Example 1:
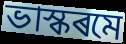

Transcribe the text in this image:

ভাস্কৰমে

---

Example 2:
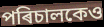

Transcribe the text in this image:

পৰিচালকেও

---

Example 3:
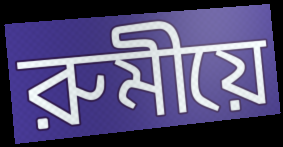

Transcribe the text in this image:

ৰুমীয়ে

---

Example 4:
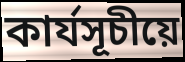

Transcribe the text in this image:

কাৰ্যসূচীয়ে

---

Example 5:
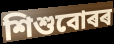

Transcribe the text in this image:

শিশুবোৰৰ